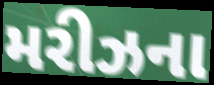
મરીઝના